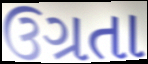
ઉગ્રતા